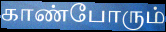
காண்போரும்